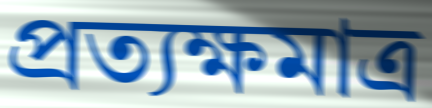
প্রত্যক্ষমাত্র